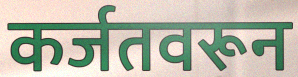
कर्जतवरून